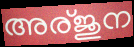
അര്ജുന